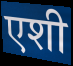
एशी